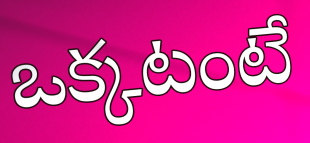
ఒక్కటంటే